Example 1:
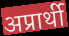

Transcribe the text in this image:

अप्रार्थी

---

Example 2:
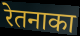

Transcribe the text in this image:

रेतनाका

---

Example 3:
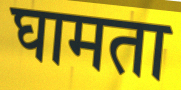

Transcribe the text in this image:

घामता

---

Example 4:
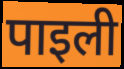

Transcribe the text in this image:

पाइली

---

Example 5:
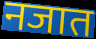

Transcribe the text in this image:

नजात